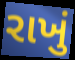
રાખું